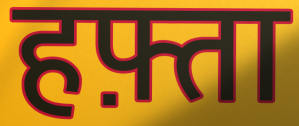
हफ़्ता